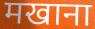
मखाना